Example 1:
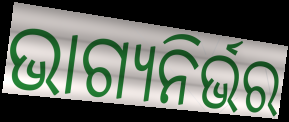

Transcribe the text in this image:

ଭାଗ୍ୟନିର୍ଭର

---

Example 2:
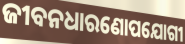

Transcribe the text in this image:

ଜୀବନଧାରଣୋପଯୋଗୀ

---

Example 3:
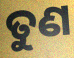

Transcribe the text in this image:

ତୁଣ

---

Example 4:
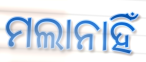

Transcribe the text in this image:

ମଲାନାହିଁ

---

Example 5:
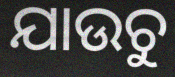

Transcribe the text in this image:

ଯାଉଚୁ